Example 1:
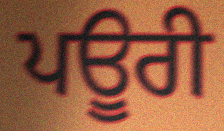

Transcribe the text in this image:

ਪਊਰੀ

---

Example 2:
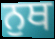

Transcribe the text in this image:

ਨੁਥ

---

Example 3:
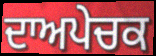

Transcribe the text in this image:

ਦਾਅਪੇਚਕ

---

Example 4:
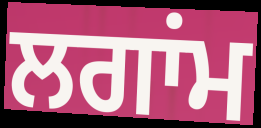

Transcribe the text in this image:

ਲਗਾਂਮ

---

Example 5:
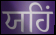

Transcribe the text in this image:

ਯਹਿਂ